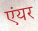
एंयर